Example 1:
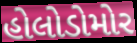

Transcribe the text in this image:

હોલોડોમોર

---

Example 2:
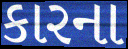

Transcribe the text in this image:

કારના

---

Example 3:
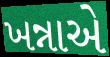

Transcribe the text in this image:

ખન્નાએ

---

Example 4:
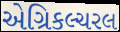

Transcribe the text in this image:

એગ્રિકલ્ચરલ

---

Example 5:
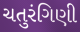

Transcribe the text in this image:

ચતુરંગિણી